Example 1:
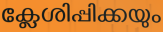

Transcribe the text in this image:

ക്ലേശിപ്പിക്കയും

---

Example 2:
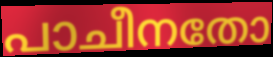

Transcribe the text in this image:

പാചീനതോ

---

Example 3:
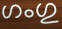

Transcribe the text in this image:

ഗംഗു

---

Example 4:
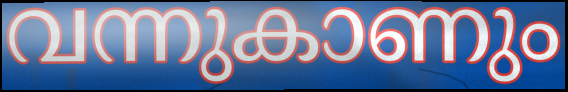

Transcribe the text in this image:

വന്നുകാണും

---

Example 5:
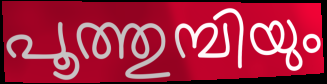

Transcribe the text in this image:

പൂത്തുമ്പിയും